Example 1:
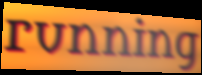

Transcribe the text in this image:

running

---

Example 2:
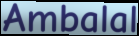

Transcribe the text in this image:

Ambalal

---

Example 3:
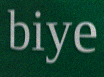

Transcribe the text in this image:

biye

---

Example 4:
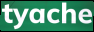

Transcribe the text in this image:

tyache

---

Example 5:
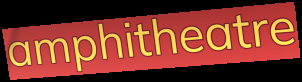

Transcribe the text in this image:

amphitheatre